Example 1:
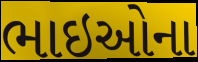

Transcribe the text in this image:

ભાઇઓના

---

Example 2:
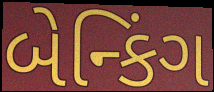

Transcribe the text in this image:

બેન્કિંગ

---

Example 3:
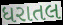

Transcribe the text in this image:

ધરાતલ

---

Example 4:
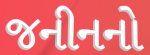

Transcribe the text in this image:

જનીનનો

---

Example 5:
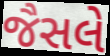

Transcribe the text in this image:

જૈસલે